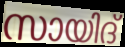
സായിദ്